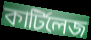
কার্টিলেজ